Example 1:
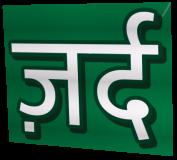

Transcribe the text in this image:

ज़र्द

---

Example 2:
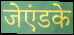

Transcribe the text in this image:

जेएंडके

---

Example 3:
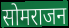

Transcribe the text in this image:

सोमराजन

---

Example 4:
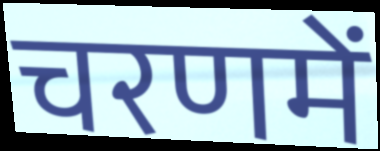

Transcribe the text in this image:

चरणमें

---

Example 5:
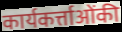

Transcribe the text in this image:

कार्यकर्त्ताओंकी